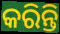
କରିନ୍ତି